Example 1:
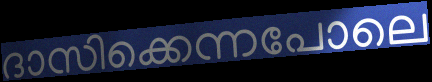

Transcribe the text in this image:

ദാസിക്കെന്നപോലെ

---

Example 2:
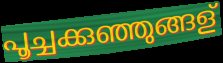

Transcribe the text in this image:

പൂച്ചക്കുഞ്ഞുങ്ങള്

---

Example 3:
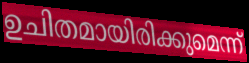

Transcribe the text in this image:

ഉചിതമായിരിക്കുമെന്ന്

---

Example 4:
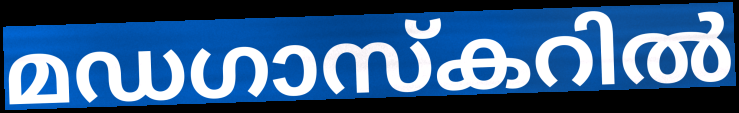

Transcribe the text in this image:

മഡഗാസ്കറിൽ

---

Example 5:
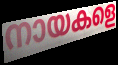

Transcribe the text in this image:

നായകളെ